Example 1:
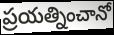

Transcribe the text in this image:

ప్రయత్నించానో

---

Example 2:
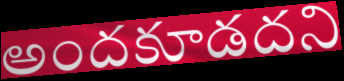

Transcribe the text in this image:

అందకూడదని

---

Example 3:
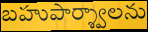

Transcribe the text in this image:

బహుపార్శ్వాలను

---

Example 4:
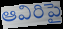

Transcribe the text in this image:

ఆవిరిపై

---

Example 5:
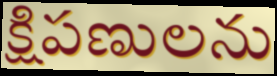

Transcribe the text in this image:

క్షిపణులను